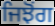
ਜਿਝੋਂਗ